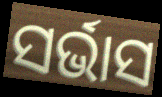
ସର୍ଭାସ